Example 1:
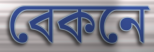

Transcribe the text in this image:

বেকনে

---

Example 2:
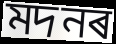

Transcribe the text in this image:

মদনৰ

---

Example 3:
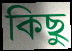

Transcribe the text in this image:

কিছু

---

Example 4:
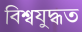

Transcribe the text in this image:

বিশ্বযুদ্ধত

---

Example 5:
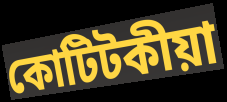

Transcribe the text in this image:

কোটিটকীয়া